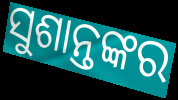
ସୁଶାନ୍ତଙ୍କର